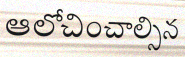
ఆలోచించాల్సిన